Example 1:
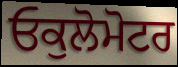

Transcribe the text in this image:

ਓਕੁਲੋਮੋਟਰ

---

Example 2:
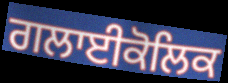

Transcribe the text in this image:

ਗਲਾਈਕੋਲਿਕ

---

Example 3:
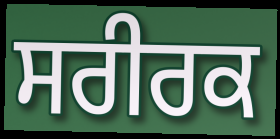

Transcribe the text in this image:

ਸਰੀਰਕ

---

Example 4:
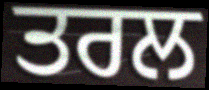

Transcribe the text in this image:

ਤਰਲ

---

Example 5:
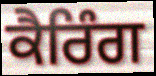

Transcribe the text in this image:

ਕੈਰਿੰਗ